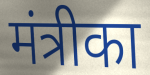
मंत्रीका